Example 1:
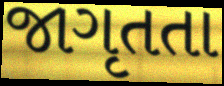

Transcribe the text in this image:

જાગૃતતા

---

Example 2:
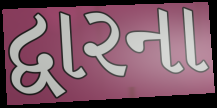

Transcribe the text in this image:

દ્વારના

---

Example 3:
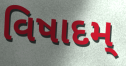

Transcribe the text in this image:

વિષાદમ્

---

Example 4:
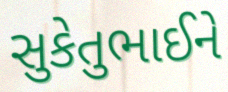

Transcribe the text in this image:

સુકેતુભાઈને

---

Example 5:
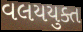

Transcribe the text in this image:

વલયયુક્ત